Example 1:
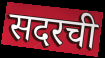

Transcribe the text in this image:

सदरची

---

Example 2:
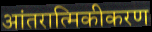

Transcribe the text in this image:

आंतरात्मिकीकरण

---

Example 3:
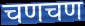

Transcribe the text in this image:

चणचण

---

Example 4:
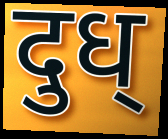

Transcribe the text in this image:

दुध्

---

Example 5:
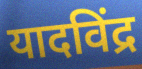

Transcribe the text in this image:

यादविंद्र